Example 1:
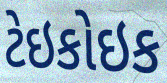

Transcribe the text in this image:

ટેઇકોઇક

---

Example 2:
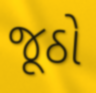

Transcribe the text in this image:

જૂઠો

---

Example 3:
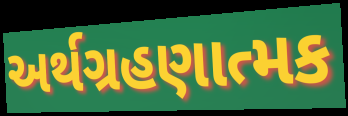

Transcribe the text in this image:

અર્થગ્રહણાત્મક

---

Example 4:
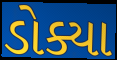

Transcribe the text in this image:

ડોક્યા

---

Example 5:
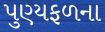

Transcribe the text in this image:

પુણ્યફળના